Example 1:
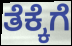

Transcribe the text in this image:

ತೆಕ್ಕೆಗೆ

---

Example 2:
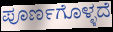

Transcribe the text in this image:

ಪೂರ್ಣಗೊಳ್ಳದೆ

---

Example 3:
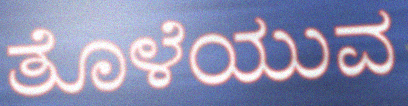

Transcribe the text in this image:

ತೊಳೆಯುವ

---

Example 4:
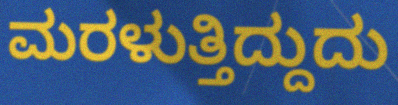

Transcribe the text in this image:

ಮರಳುತ್ತಿದ್ದುದು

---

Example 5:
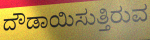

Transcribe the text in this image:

ದೌಡಾಯಿಸುತ್ತಿರುವ